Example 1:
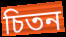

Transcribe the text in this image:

চিতন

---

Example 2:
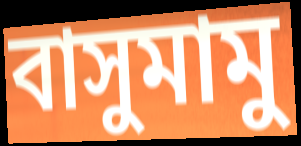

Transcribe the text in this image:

বাসুমামু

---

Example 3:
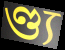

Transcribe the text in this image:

ণ্ড্য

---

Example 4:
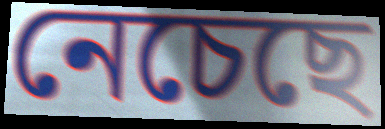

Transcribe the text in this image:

নেচেছে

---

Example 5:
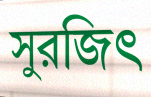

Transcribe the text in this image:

সুরজিৎ